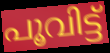
പൂവിട്ട്